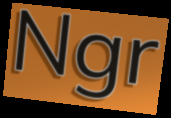
Ngr